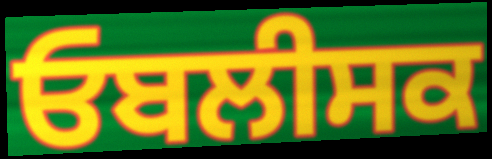
ਓਬਲੀਸਕ